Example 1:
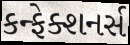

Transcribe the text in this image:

કન્ફેક્શનર્સ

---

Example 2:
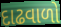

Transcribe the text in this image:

દાઢવાળો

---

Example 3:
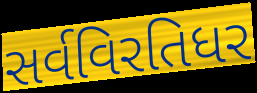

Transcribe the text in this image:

સર્વવિરતિધર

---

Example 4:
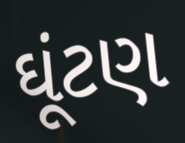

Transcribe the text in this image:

ઘૂંટણ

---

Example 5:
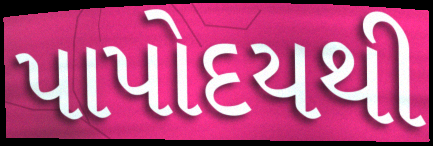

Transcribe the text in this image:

પાપોદયથી